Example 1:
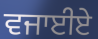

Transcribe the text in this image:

ਵਜਾਈਏ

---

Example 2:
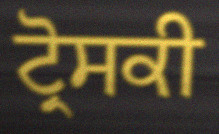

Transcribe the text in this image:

ਟ੍ਰੋਸਕੀ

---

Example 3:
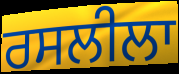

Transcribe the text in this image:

ਰਸਲੀਲਾ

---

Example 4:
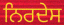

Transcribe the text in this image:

ਨਿਰਦੇਸ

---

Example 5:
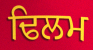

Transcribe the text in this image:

ਢਿਲਮ